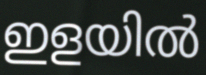
ഇളയിൽ